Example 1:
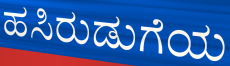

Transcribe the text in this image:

ಹಸಿರುಡುಗೆಯ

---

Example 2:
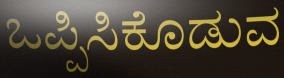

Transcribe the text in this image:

ಒಪ್ಪಿಸಿಕೊಡುವ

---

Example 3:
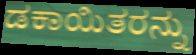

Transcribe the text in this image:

ಡಕಾಯಿತರನ್ನು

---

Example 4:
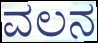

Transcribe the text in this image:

ವಲನ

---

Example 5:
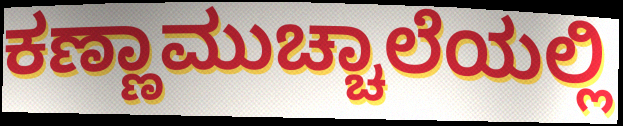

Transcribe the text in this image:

ಕಣ್ಣಾಮುಚ್ಚಾಲೆಯಲ್ಲಿ